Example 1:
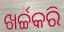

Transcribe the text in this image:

ଖର୍ଚ୍ଚକରି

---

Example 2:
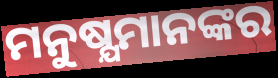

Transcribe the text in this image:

ମନୁଷ୍ଯମାନଙ୍କର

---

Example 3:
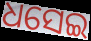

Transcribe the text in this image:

ଧସେଇ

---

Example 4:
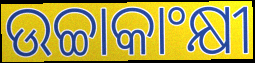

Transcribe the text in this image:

ଉଚ୍ଚାକାଂକ୍ଷୀ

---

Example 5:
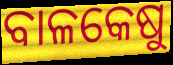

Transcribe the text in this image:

ବାଳକେଷୁ